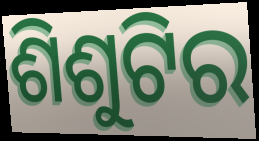
ଶିଶୁଟିର